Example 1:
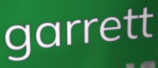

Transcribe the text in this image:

garrett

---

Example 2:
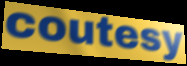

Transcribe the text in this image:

coutesy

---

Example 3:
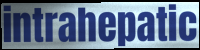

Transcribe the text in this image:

intrahepatic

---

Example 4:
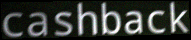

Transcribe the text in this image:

cashback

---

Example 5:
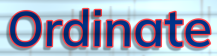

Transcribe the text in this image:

Ordinate